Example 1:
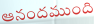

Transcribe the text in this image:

ఆనందముంది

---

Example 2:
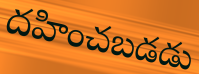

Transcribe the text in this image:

దహించబడడు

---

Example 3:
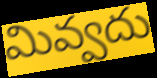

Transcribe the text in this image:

మివ్వదు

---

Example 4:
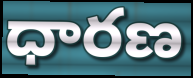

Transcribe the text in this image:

ధారణ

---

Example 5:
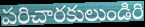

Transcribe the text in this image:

పరిచారకులుండిరి